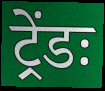
ट्रेंडः